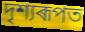
দৃশ্যৰূপত